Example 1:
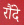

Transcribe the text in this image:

रौंदे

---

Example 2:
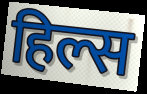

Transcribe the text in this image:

हिल्स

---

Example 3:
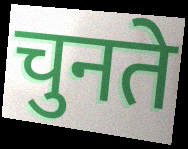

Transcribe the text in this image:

चुनते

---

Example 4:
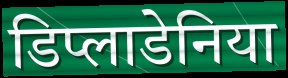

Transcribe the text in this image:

डिप्लाडेनिया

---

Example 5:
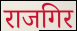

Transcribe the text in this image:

राजगिर